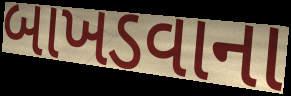
બાખડવાના